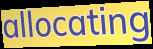
allocating